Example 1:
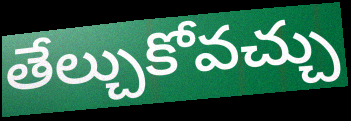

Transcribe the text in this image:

తేల్చుకోవచ్చు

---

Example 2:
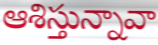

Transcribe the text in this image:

ఆశిస్తున్నావా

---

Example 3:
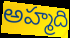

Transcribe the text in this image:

అహ్మది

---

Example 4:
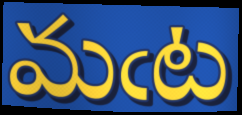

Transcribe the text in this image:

మఁట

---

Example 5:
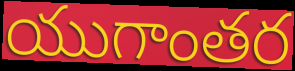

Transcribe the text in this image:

యుగాంతర